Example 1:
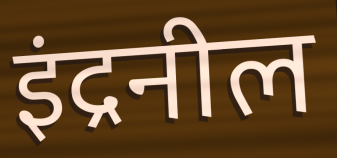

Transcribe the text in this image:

इंद्रनील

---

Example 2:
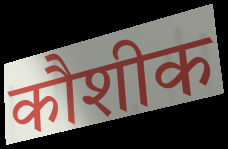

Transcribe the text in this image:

कौशीक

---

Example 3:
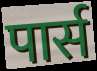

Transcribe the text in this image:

पार्स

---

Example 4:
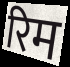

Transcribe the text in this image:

रिम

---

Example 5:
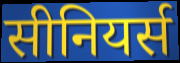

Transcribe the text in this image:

सीनियर्स